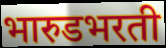
भारुडभरती